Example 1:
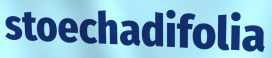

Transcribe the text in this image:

stoechadifolia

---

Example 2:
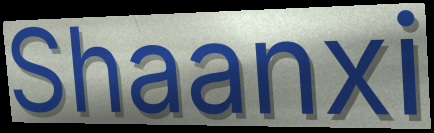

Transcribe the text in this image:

Shaanxi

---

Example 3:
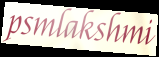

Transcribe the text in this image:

psmlakshmi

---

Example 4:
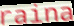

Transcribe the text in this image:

raina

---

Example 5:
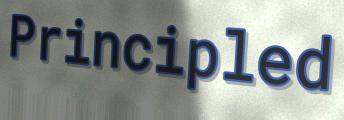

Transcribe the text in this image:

Principled